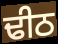
ਢੀਠ